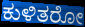
ಕುಳಿತರೋ